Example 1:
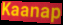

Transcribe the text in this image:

Kaanap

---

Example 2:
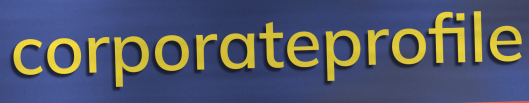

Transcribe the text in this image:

corporateprofile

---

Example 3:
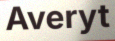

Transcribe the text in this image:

Averyt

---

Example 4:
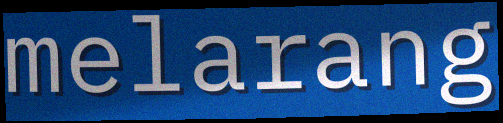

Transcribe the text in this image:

melarang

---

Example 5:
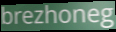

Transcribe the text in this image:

brezhoneg